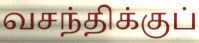
வசந்திக்குப்